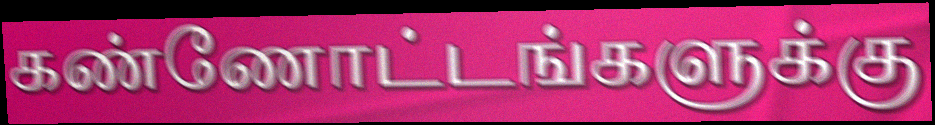
கண்ணோட்டங்களுக்கு